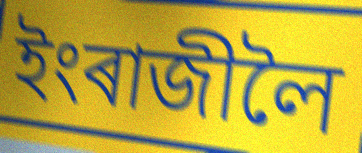
ইংৰাজীলৈ